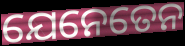
ଯେନେତେନ